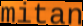
mitan